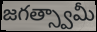
జగత్స్వామీ